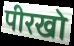
पीरखो